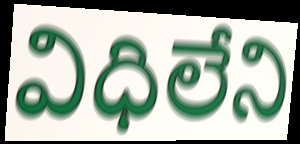
విధిలేని